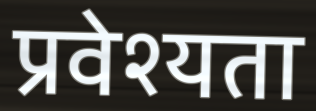
प्रवेश्यता